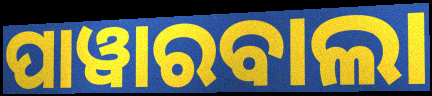
ପାୱାରବାଲା